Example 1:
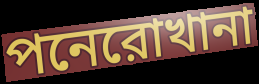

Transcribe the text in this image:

পনেরোখানা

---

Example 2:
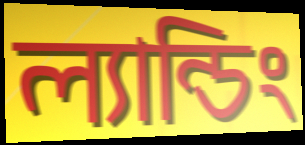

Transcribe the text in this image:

ল্যান্ডিং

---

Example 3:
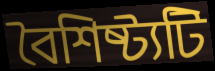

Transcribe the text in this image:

বৈশিষ্ট্যটি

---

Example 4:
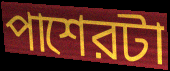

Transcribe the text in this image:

পাশেরটা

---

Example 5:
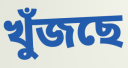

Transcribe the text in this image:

খুঁজছে